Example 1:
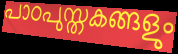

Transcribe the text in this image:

പാഠപുസ്തകങ്ങളും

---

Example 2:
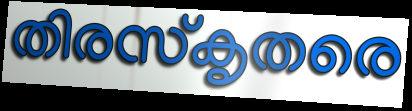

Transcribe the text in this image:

തിരസ്കൃതരെ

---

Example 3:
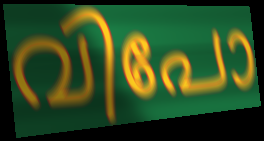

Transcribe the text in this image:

വിപോ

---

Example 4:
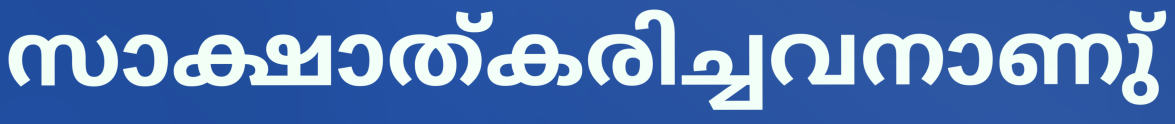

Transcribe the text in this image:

സാക്ഷാത്കരിച്ചവനാണു്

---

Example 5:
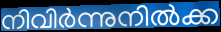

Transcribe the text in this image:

നിവിർന്നുനിൽക്ക